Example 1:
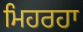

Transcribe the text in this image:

ਮਿਹਰਹਾ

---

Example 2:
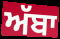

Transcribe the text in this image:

ਅੱਬਾ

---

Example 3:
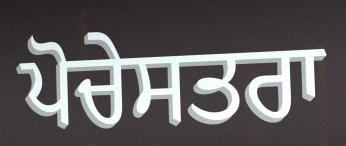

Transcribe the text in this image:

ਪੋਚੇਸਤਰਾ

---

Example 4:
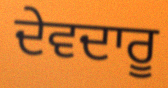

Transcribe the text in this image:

ਦੇਵਦਾਰੂ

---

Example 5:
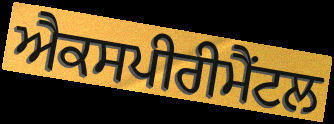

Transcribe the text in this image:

ਐਕਸਪੀਰੀਮੈਂਟਲ